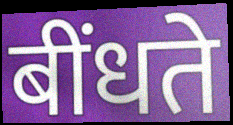
बींधते